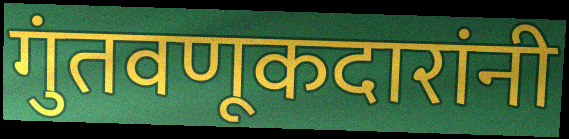
गुंतवणूकदारांनी